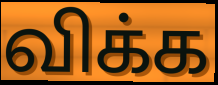
விக்க